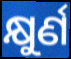
କ୍ଷୁର୍ଣ